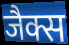
जैक्स